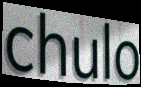
chulo